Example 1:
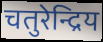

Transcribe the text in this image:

चतुरेन्द्रिय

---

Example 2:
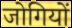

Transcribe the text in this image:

जोगियों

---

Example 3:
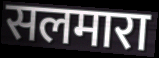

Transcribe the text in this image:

सलमारा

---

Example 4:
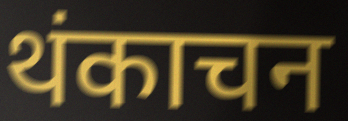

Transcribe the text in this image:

थंकाचन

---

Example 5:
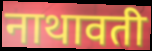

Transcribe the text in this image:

नाथावती